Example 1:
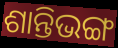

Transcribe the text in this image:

ଶାନ୍ତିଭଙ୍ଗ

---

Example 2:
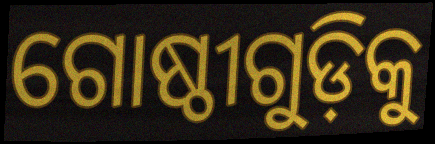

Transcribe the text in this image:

ଗୋଷ୍ଠୀଗୁଡ଼ିକୁ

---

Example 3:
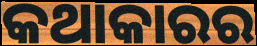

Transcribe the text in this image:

କଥାକାରର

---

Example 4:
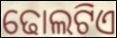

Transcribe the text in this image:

ଢୋଲଟିଏ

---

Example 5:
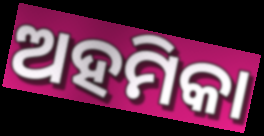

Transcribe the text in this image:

ଅହମିକା